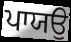
ਪਾਯਉ